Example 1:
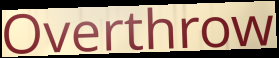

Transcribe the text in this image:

Overthrow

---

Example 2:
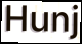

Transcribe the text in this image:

Hunj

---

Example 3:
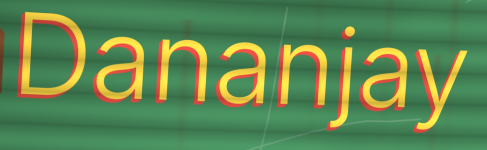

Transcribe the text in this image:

Dananjay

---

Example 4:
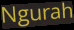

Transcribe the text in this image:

Ngurah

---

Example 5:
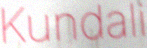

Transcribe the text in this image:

Kundali